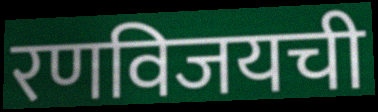
रणविजयची